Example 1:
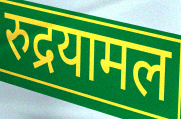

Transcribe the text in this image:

रुद्रयामल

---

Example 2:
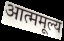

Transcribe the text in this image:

आत्ममूल्य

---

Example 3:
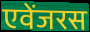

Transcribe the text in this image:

एवेंजरस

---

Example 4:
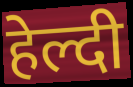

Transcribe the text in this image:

हेल्दी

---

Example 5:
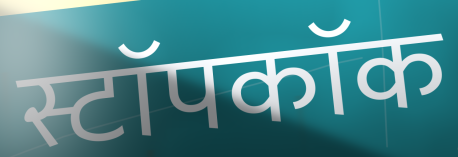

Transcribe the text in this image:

स्टॉपकॉक